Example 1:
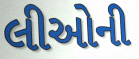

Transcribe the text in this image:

લીઓની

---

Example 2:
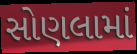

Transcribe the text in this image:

સોણલામાં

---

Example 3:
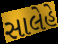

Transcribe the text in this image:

સાલેહે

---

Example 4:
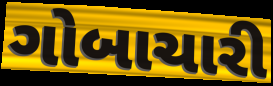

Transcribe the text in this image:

ગોબાચારી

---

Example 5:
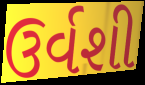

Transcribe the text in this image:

ઉર્વશી